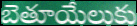
బెతూయేలుకు